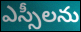
ఎస్సీలను